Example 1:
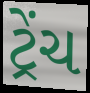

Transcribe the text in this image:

ટ્રેંચ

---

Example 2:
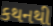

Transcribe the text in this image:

કથનથી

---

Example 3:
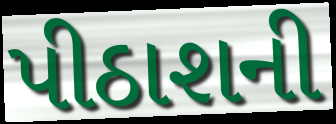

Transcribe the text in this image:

પીઠાશની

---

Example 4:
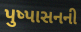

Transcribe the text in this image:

પુષ્પાસનની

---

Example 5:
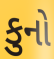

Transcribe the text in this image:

કુનો